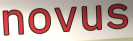
novus